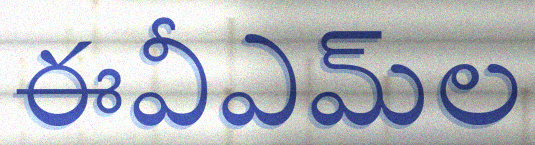
ఈవీఎమ్‌ల